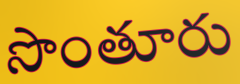
సొంతూరు